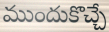
ముందుకొచ్చే